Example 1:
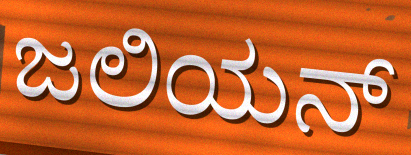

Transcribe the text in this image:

ಜಲಿಯನ್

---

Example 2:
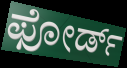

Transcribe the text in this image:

ಫೋರ್ಡ್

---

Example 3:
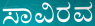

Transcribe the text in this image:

ಸಾವಿರವ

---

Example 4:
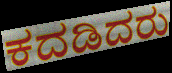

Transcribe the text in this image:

ಕದಡಿದರು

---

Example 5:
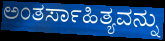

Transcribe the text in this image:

ಅಂತರ್ಸಾಹಿತ್ಯವನ್ನು